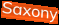
Saxony